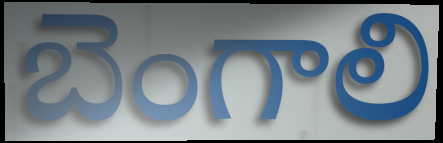
బెంగాలి